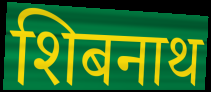
शिबनाथ